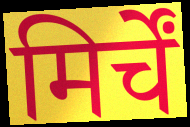
मिर्चें